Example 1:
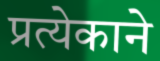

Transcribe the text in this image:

प्रत्येकाने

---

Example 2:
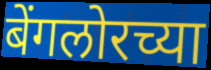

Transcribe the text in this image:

बेंगलोरच्या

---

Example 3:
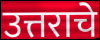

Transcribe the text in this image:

उत्तराचे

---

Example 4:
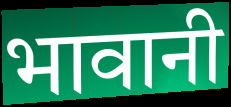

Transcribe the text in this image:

भावानी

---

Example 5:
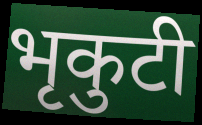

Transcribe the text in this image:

भृकुटी